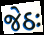
જેઠઃ